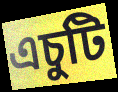
এচুটি